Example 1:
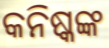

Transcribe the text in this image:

କନିଷ୍କଙ୍କ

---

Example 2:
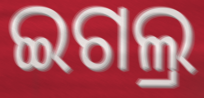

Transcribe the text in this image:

ଇଗଲ୍ର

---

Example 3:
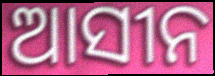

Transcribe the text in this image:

ଆସୀନ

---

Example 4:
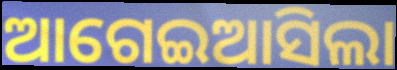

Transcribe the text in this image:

ଆଗେଇଆସିଲା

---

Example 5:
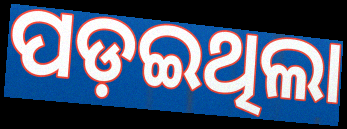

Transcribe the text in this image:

ପଡ଼ଇଥିଲା